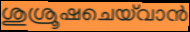
ശുശ്രൂഷചെയ്‌വാൻ